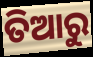
ତିଆରୁ